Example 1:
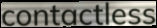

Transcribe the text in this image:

contactless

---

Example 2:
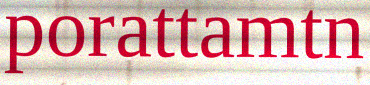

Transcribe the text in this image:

porattamtn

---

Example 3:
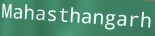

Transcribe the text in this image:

Mahasthangarh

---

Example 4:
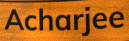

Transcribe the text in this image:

Acharjee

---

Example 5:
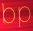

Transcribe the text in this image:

bp